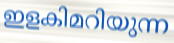
ഇളകിമറിയുന്ന